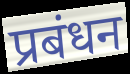
प्रबंधन